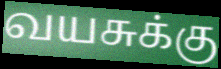
வயசுக்கு